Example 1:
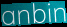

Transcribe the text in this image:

anbin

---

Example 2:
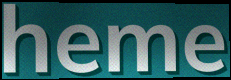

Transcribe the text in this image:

heme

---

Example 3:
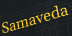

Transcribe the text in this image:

Samaveda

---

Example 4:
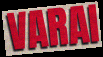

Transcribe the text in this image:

VARAI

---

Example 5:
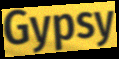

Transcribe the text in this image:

Gypsy